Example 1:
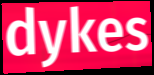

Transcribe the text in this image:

dykes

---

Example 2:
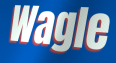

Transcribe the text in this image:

Wagle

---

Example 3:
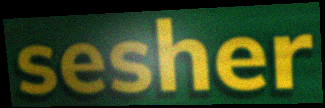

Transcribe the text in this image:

sesher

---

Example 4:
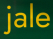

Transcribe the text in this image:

jale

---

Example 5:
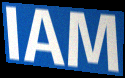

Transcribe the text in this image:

IAM